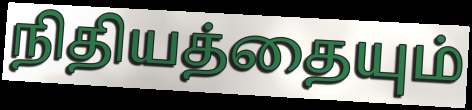
நிதியத்தையும்